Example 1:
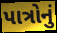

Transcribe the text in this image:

પાત્રોનું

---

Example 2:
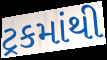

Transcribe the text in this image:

ટ્રકમાંથી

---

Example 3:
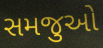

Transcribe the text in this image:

સમજુઓ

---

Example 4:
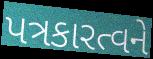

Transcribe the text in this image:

પત્રકારત્વને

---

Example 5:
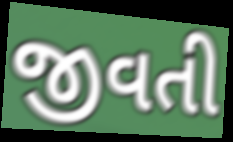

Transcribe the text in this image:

જીવતી